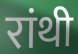
रांथी